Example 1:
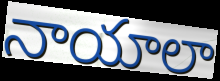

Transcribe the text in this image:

నాయాలా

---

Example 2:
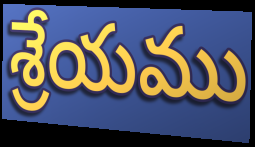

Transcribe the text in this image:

శ్రేయము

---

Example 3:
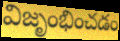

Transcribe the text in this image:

విజృంభించడం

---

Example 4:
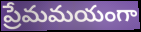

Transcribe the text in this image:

ప్రేమమయంగా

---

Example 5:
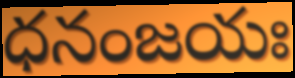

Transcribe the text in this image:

ధనంజయః